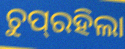
ଚୁପ୍‌ରହିଲା